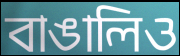
বাঙালিও